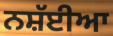
ਨਸ਼ੱਈਆ